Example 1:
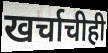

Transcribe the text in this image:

खर्चाचीही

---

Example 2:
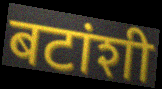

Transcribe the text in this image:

बटांशी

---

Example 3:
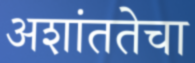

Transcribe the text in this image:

अशांततेचा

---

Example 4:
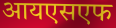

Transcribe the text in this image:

आयएसएफ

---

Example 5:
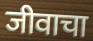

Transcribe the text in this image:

जीवाचा